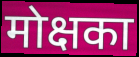
मोक्षका